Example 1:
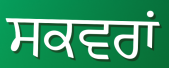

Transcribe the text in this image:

ਸਕਵਰਾਂ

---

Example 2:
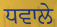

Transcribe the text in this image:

ਧਵਾਲੇ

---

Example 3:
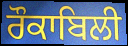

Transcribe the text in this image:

ਰੌਕਾਬਿਲੀ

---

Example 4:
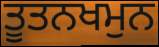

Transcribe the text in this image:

ਤੂਤਨਖਮੁਨ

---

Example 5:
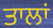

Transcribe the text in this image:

ਤਾਲਾਂ